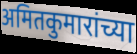
अमितकुमारांच्या